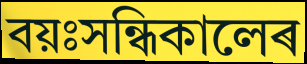
বয়ঃসন্ধিকালেৰ